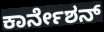
ಕಾರ್ನೇಶನ್